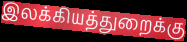
இலக்கியத்துறைக்கு